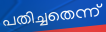
പതിച്ചതെന്ന്